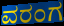
ವರಂಗ